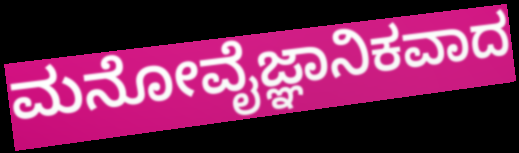
ಮನೋವೈಜ್ಞಾನಿಕವಾದ